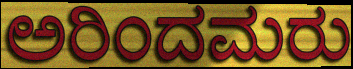
ಅರಿಂದಮರು